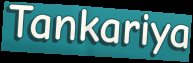
Tankariya